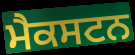
ਮੈਕਸਟਨ